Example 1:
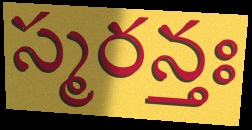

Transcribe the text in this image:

స్మరన్తః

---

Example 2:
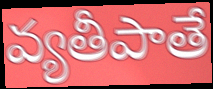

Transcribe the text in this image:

వ్యతీపాతే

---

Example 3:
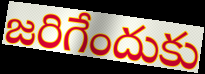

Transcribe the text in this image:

జరిగేందుకు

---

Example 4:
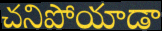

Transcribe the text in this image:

చనిపోయాడా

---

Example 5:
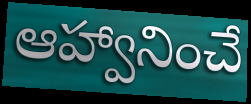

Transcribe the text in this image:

ఆహ్వానించే